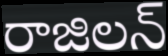
రాజిలన్